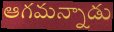
ఆగమన్నాడు